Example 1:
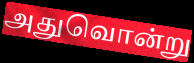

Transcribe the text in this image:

அதுவொன்று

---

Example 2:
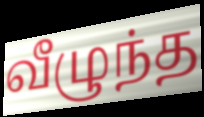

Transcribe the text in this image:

வீழுந்த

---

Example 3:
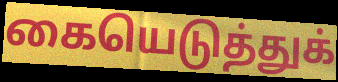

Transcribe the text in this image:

கையெடுத்துக்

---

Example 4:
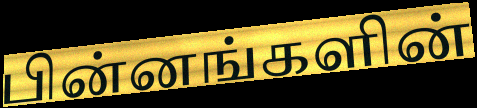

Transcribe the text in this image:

பின்னங்களின்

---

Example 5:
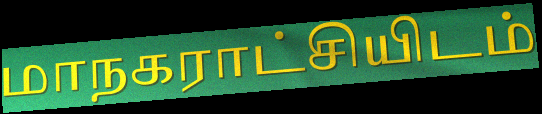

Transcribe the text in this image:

மாநகராட்சியிடம்